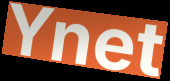
Ynet